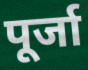
पूर्जा